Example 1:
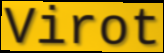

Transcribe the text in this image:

Virot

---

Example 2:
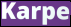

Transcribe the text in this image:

Karpe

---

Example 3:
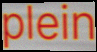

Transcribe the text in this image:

plein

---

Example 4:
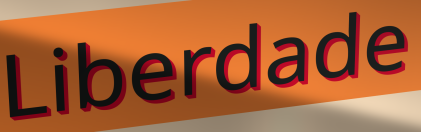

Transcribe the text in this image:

Liberdade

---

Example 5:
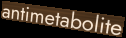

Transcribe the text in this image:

antimetabolite